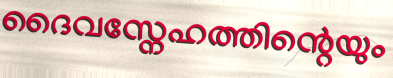
ദൈവസ്നേഹത്തിന്റെയും